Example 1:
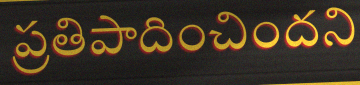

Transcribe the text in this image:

ప్రతిపాదించిందని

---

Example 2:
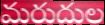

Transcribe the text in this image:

మరుదుల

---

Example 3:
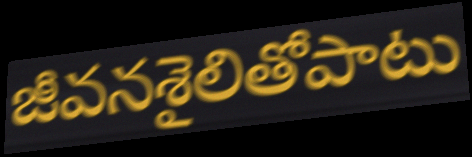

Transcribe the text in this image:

జీవనశైలితోపాటు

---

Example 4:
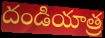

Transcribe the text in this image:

దండియాత్ర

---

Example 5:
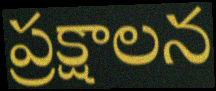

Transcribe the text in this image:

ప్రక్షాలన